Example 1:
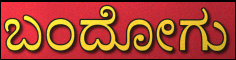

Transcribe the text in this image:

ಬಂದೋಗು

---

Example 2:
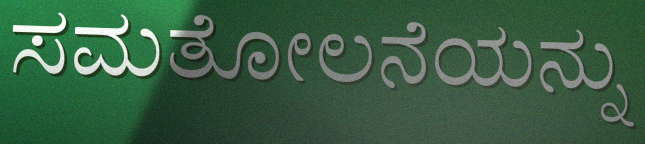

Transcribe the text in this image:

ಸಮತೋಲನೆಯನ್ನು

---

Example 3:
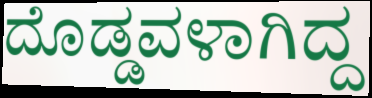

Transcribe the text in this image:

ದೊಡ್ಡವಳಾಗಿದ್ದ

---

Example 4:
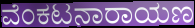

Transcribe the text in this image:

ವೆಂಕಟನಾರಾಯಣ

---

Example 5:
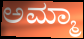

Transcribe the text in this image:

ಅಮ್ಮಾ